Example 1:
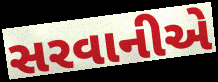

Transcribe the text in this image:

સરવાનીએ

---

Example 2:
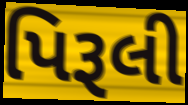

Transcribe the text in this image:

પિરૂલી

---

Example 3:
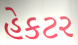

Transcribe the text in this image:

હેકટર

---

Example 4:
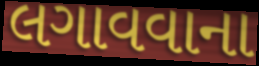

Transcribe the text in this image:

લગાવવાના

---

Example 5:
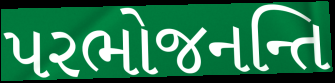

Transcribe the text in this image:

પરભોજનન્તિ